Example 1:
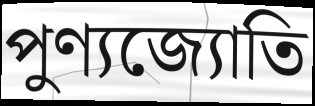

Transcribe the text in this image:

পুণ্যজ্যোতি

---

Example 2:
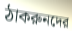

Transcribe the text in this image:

ঠাকরুনদের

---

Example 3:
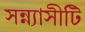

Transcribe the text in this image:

সন্ন্যাসীটি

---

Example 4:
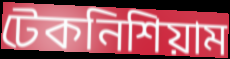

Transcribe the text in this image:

টেকনিশিয়াম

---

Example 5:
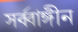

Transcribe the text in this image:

সর্ব্বাঙ্গীন